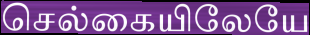
செல்கையிலேயே